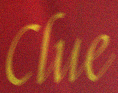
Clue